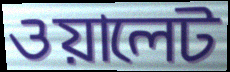
ওয়ালেট